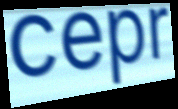
cepr